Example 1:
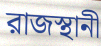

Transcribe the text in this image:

রাজস্থানী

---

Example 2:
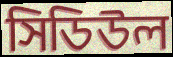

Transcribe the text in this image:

সিডিউল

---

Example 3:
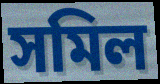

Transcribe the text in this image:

সমিল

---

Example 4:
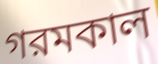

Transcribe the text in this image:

গরমকাল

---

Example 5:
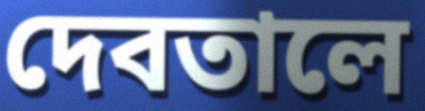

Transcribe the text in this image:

দেবতালে